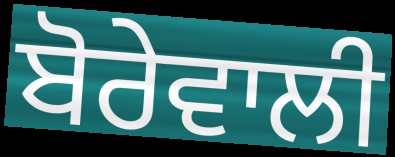
ਬੋਰੇਵਾਲੀ